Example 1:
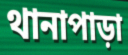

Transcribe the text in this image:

থানাপাড়া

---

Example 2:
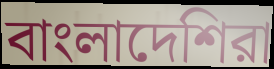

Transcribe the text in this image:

বাংলাদেশিরা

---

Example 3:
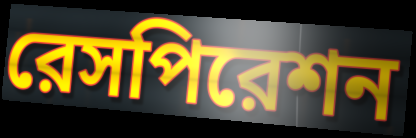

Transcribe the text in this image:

রেসপিরেশন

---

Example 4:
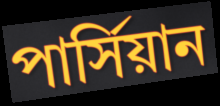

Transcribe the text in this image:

পার্সিয়ান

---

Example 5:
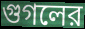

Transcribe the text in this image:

গুগলের